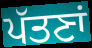
ਪੱਤਣਾਂ